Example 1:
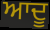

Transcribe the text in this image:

ਆਦੂ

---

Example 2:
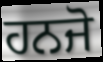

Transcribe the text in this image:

ਹਨਜੋ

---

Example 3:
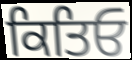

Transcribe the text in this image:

ਕਿਤਿਓ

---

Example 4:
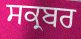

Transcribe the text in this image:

ਸਕ੍ਰਬਰ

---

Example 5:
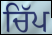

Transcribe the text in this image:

ਚਿੱਪ